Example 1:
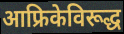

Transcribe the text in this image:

आफ्रिकेविरूद्ध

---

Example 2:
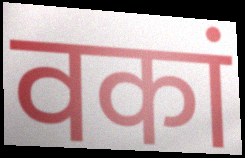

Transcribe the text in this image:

वकां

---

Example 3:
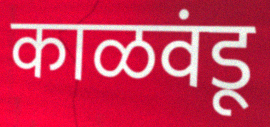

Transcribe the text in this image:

काळवंडू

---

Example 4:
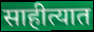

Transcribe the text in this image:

साहीत्यात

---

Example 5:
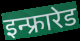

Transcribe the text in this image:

इन्फ्रारेड